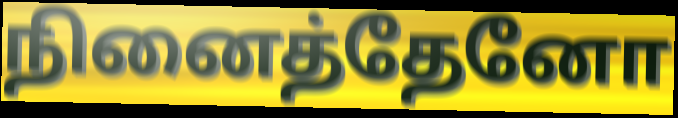
நினைத்தேனோ